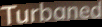
Turbaned